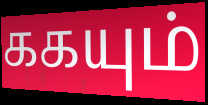
ககயும்